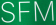
SFM